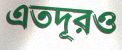
এতদূরও